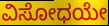
ವಿಸೋಧಯೇ